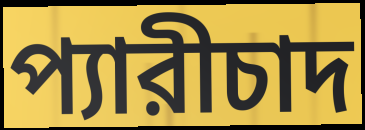
প্যারীচাদ